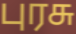
புரசு